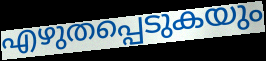
എഴുതപ്പെടുകയും